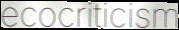
ecocriticism